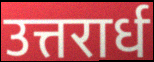
उत्तरार्ध